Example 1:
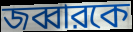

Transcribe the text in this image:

জব্বারকে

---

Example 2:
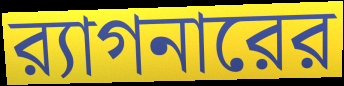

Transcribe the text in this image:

র‍্যাগনারের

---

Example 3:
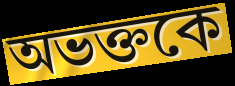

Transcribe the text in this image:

অভক্তকে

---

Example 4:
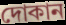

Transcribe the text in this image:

দোকান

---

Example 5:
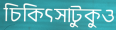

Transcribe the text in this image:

চিকিৎসাটুকুও